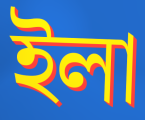
ইলা